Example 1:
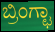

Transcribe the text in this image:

ಬ್ರಿಂಗ್ಟಾ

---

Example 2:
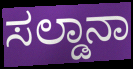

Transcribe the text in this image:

ಸಲ್ಡಾನಾ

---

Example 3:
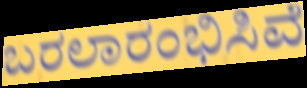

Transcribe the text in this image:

ಬರಲಾರಂಭಿಸಿವೆ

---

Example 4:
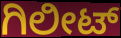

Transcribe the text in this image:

ಗಿಲೀಟ್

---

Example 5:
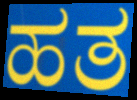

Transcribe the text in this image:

ಹತ